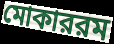
মোকাররম